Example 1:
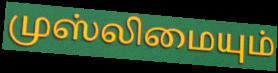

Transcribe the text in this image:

முஸ்லிமையும்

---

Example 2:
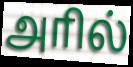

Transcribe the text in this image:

அரில்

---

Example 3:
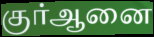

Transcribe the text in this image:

குர்ஆனை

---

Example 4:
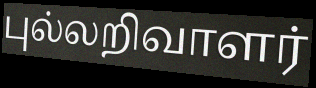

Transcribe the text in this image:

புல்லறிவாளர்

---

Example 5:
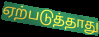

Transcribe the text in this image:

ஏற்படுத்தாது